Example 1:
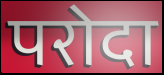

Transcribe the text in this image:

परोदा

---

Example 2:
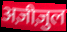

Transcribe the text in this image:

अज़ीज़ुल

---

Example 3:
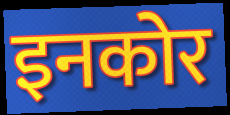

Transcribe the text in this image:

इनकोर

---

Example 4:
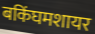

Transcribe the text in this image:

बकिंघमशायर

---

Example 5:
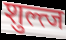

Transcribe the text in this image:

शुल्त्ज